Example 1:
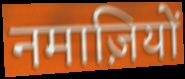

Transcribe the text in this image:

नमाज़ियों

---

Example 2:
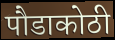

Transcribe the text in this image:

पौडाकोठी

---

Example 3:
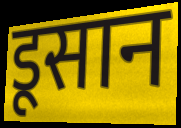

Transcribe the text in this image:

डूसान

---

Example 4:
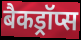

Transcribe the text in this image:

बैकड्रॉप्स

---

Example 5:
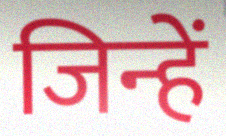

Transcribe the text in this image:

जिन्‍हें